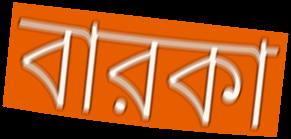
বারকা